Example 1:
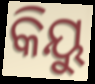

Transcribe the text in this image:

କିୟୁ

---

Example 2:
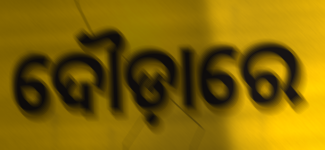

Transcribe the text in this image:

ଦୌଡ଼ାରେ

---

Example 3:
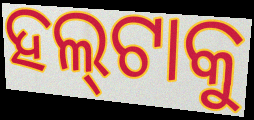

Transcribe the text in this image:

ହଲ୍‌ଟାକୁ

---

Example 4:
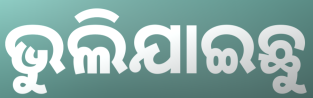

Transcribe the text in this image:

ଭୁଲିଯାଇଛୁ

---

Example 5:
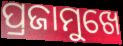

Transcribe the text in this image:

ପ୍ରଜାମୁଖେ